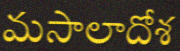
మసాలాదోశ